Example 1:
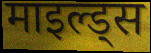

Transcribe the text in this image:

माइल्ड्स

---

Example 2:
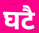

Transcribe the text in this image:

घटै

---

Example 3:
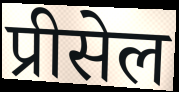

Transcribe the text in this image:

प्रीसेल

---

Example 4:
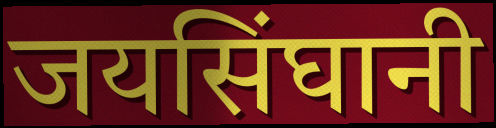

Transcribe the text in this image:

जयसिंघानी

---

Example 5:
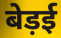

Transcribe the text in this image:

बेड़ई